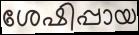
ശേഷിപ്പായ